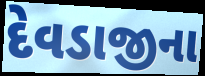
દેવડાજીના